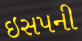
ઇસપની